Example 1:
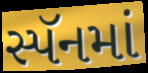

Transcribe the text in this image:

સ્પૅનમાં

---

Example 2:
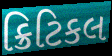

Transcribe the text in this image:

ક્રિટિકલ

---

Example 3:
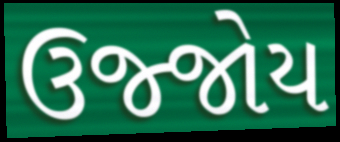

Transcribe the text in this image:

ઉજ્જોય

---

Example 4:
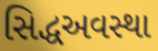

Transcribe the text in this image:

સિદ્ધઅવસ્થા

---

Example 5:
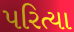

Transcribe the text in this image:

પરિત્યા